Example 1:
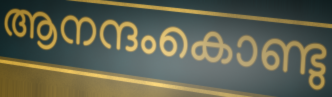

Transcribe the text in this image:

ആനന്ദംകൊണ്ടു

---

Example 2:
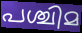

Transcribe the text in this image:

പശ്ചിമ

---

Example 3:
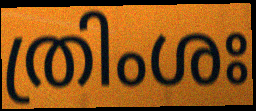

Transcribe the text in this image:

ത്രിംശഃ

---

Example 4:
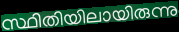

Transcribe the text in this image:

സ്ഥിതിയിലായിരുന്നു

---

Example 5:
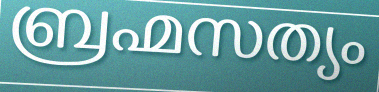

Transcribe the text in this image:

ബ്രഹ്മസത്യം